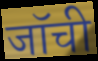
जॉची